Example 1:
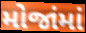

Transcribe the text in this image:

મોજાંમાં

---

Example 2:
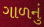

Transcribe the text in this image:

ગાળનું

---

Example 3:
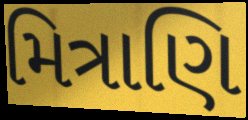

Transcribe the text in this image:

મિત્રાણિ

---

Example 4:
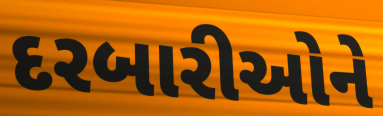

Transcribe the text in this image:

દરબારીઓને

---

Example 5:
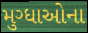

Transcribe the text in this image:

મુગ્ધાઓના